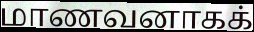
மாணவனாகக்